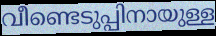
വീണ്ടെടുപ്പിനായുള്ള